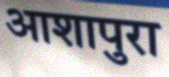
आशापुरा